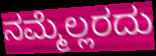
ನಮ್ಮೆಲ್ಲರದು